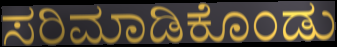
ಸರಿಮಾಡಿಕೊಂಡು